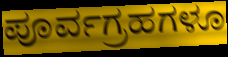
ಪೂರ್ವಗ್ರಹಗಳೂ